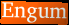
Engum